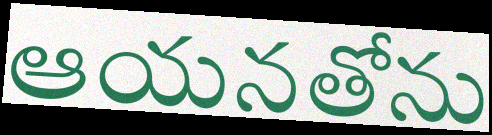
ఆయనతోను